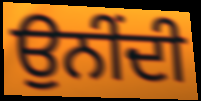
ਉਨੀਂਦੀ